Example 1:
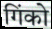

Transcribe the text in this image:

गिंको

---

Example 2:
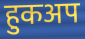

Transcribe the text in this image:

हुकअप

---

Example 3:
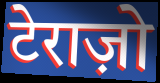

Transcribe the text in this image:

टेराज़ो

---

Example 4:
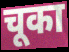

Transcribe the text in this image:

चूका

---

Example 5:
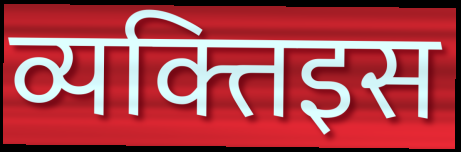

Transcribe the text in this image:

व्यक्तिइस